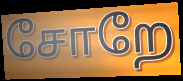
சோறே